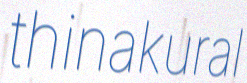
thinakural